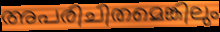
അപരിചിതമെങ്കിലും